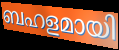
ബഹളമായി